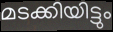
മടക്കിയിട്ടും